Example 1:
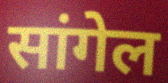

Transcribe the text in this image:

सांगेल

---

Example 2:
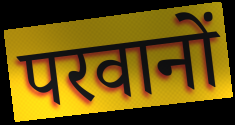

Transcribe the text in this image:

परवानों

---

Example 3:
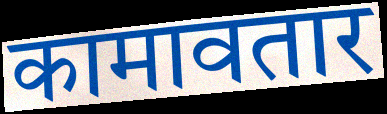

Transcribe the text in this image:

कामावतार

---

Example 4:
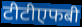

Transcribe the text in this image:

टीटीएफबी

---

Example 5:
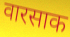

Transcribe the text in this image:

वारसाक